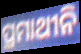
ପ୍ରମାଥୀନି